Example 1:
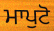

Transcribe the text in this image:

ਮਾਪੁਟੋ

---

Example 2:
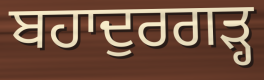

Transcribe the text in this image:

ਬਹਾਦੁਰਗੜ੍ਹ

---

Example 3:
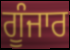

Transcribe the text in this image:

ਗੂੰਜਾਰ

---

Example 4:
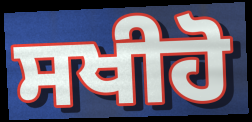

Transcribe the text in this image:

ਸਖੀਹੋ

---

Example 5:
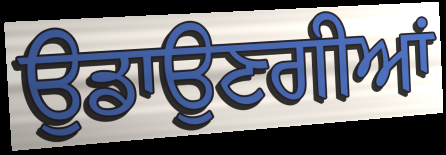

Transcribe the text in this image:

ਉਡਾਉਣਗੀਆਂ